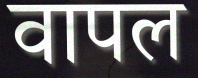
वापल